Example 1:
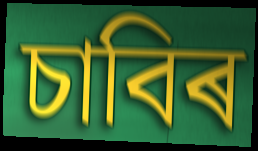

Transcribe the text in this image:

চাবিৰ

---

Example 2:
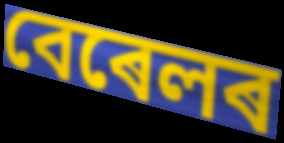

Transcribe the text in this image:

বেৰেলৰ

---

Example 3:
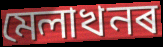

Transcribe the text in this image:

মেলাখনৰ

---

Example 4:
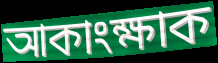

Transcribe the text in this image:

আকাংক্ষাক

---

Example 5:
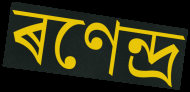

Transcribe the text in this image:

ৰণেন্দ্ৰ